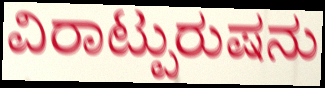
ವಿರಾಟ್ಪುರುಷನು